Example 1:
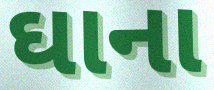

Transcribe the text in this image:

ઘાના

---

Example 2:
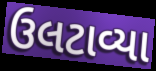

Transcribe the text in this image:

ઉલટાવ્યા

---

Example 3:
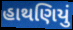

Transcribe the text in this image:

હાથણિયું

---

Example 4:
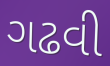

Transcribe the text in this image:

ગઢવી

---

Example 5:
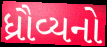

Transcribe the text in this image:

ધ્રૌવ્યનો